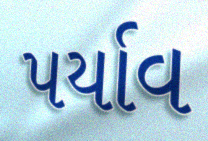
પર્યાવ